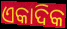
ଏକାଦିକ